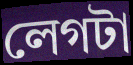
লেগটা